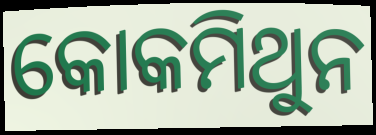
କୋକମିଥୁନ